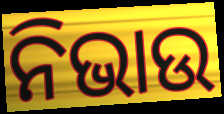
ନିଭାଉ